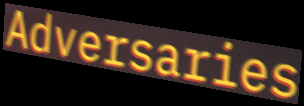
Adversaries